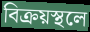
বিক্রয়স্থলে